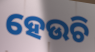
ହେଉଚି